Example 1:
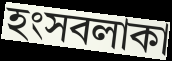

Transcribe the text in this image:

হংসবলাকা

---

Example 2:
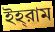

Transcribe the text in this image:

ইহ্‌রাম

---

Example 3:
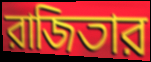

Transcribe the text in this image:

রাজিতার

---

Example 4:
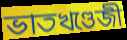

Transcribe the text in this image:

ভাতখণ্ডেজী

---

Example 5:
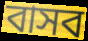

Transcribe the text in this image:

বাসব